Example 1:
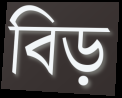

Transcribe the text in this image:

বিড়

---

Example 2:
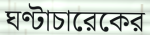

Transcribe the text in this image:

ঘণ্টাচারেকের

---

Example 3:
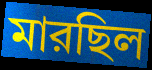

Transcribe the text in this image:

মারছিল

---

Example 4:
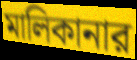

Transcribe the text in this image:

মালিকানার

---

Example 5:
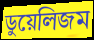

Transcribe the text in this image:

ডুয়েলিজম